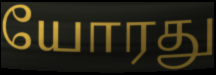
யோரது